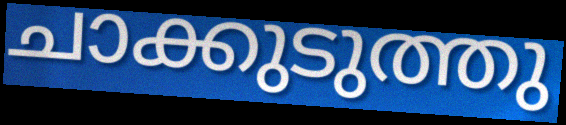
ചാക്കുടുത്തു